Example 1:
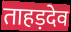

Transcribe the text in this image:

ताहड़देव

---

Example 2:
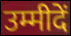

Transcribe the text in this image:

उम्‍मीदें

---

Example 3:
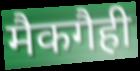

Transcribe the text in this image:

मैकगैही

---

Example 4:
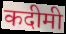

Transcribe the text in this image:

कदीमी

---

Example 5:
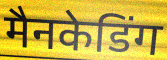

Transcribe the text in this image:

मैनकेडिंग